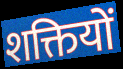
शक्तियों